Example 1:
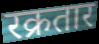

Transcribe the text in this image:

रक्रतार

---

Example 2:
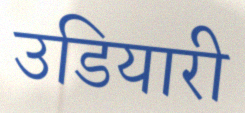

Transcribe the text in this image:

उडियारी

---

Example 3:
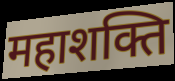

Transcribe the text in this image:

महाशक्ति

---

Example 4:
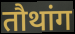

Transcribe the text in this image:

तौथांग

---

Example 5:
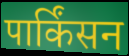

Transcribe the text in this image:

पार्किंसन